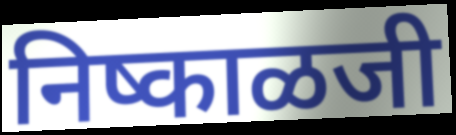
निष्काळजी